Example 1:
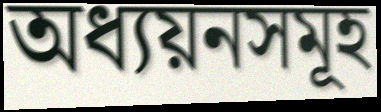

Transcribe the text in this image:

অধ্যয়নসমূহ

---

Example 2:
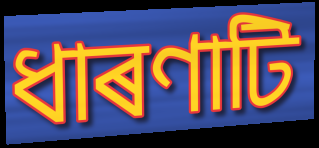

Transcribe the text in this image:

ধাৰণাটি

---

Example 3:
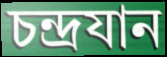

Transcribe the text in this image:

চন্দ্ৰযান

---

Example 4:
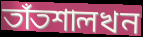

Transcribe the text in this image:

তাঁতশালখন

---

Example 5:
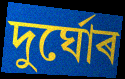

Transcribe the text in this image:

দুৰ্ঘোৰ